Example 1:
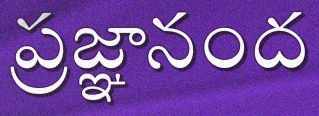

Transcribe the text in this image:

ప్రజ్ఞానంద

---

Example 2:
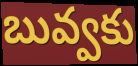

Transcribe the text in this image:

బువ్వకు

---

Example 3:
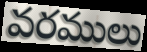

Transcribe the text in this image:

వరములు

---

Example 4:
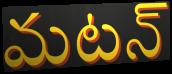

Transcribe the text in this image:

మటన్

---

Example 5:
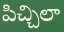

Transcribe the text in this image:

పిచ్చిలా